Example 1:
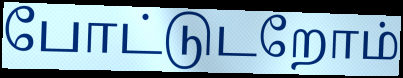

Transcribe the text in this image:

போட்டுடறோம்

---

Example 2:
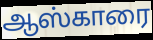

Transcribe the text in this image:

ஆஸ்காரை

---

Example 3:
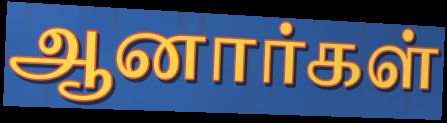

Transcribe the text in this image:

ஆனார்கள்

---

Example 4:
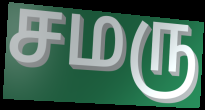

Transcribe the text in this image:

சமரு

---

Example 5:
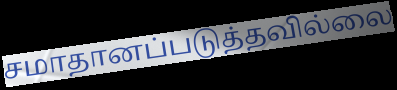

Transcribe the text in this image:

சமாதானப்படுத்தவில்லை